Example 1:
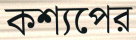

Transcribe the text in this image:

কশ্যপের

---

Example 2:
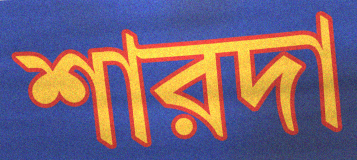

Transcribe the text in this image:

শারদা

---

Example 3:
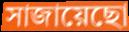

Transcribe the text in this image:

সাজায়েছো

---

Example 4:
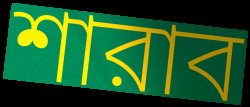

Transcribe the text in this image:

শারাব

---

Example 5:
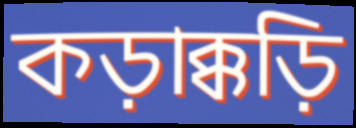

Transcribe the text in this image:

কড়াক্কড়ি